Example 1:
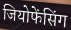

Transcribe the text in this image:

जियोफेंसिंग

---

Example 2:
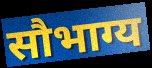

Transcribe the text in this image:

सौभाग्य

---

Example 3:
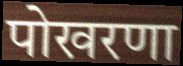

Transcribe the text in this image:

पोखरणा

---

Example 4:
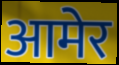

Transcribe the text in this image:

आमेर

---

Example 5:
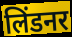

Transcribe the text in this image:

लिंडनर